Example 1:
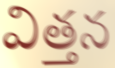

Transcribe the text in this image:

విత్తన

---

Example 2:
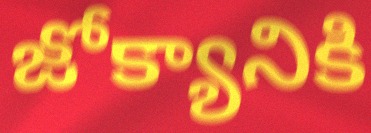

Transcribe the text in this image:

జోక్యానికి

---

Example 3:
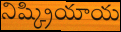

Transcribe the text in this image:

నిష్క్రియాయ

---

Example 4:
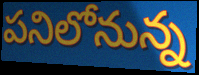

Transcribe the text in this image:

పనిలోనున్న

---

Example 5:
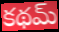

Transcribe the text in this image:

కథమ్